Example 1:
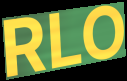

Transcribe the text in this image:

RLO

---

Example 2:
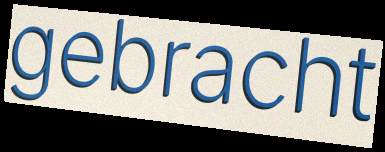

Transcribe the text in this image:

gebracht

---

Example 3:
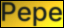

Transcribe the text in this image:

Pepe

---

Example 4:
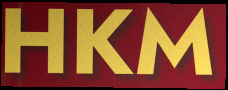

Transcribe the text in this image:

HKM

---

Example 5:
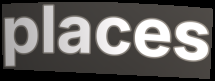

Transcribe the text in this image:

places